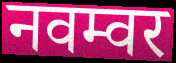
नवम्वर